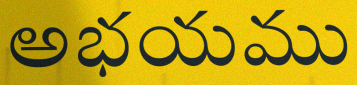
అభయము